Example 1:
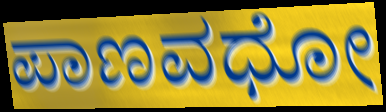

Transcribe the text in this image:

ಪಾಣವಧೋ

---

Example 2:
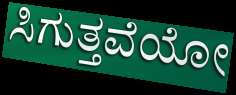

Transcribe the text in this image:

ಸಿಗುತ್ತವೆಯೋ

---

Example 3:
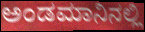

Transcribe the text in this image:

ಅಂಡಮಾನಿನಲ್ಲಿ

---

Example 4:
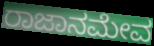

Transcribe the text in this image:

ರಾಜಾನಮೇವ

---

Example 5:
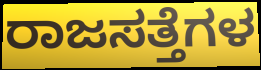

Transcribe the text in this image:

ರಾಜಸತ್ತೆಗಳ